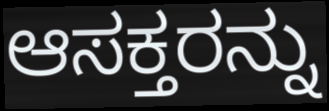
ಆಸಕ್ತರನ್ನು